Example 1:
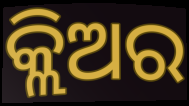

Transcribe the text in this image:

କ୍ଲିଅର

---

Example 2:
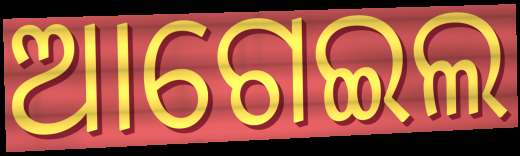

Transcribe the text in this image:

ଆଗେଇଲ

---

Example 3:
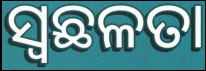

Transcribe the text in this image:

ସ୍ୱଛଳତା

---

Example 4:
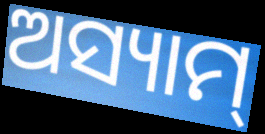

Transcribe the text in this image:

ଅସ୍ୟାମ୍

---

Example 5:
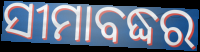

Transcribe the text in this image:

ସୀମାବଦ୍ଧର